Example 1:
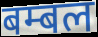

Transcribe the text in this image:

बम्बल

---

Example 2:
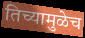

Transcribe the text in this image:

तिच्यामुळेच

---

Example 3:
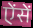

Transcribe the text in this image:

ऐंसें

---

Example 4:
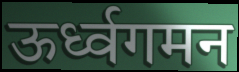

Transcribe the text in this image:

ऊर्ध्वगमन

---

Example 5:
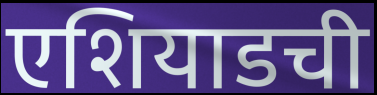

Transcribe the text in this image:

एशियाडची